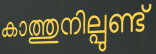
കാത്തുനില്പുണ്ട്